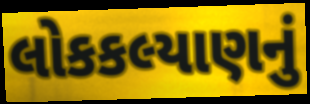
લોકકલ્યાણનું